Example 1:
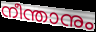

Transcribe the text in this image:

നീന്താനും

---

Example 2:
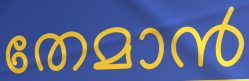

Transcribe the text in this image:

തേമാൻ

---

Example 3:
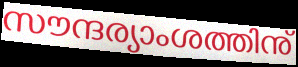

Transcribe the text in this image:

സൗന്ദര്യാംശത്തിനു്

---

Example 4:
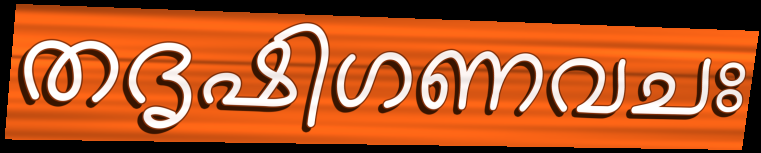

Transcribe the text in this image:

തദൃഷിഗണവചഃ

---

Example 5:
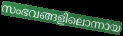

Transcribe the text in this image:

സംഭവങ്ങളിലൊന്നായ